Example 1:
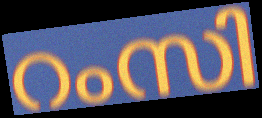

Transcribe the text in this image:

റംസി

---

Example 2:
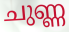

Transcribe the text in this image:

ചുണ്ണ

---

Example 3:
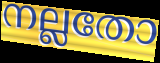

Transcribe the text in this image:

നല്ലതോ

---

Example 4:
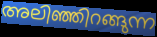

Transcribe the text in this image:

അലിഞ്ഞിറങ്ങുന്ന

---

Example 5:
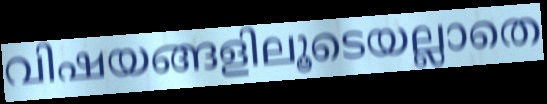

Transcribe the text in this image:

വിഷയങ്ങളിലൂടെയല്ലാതെ